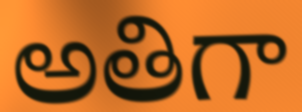
అతిగా